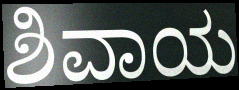
ಶಿವಾಯ